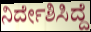
ನಿರ್ದೇಶಿಸಿದ್ದೆ